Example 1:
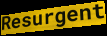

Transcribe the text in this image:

Resurgent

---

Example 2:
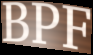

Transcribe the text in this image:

BPF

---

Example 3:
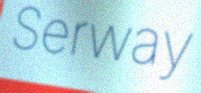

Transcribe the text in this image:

Serway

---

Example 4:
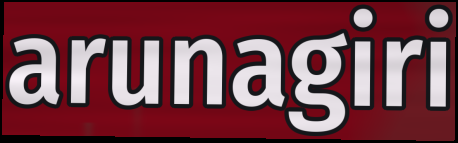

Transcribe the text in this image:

arunagiri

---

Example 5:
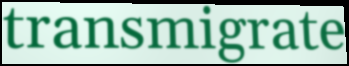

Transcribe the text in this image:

transmigrate